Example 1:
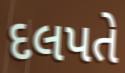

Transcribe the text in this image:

દલપતે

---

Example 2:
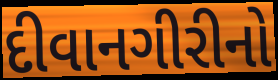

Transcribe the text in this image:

દીવાનગીરીનો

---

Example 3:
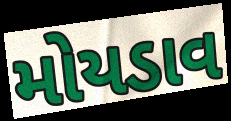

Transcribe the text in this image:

મોયડાવ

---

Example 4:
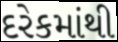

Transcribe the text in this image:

દરેકમાંથી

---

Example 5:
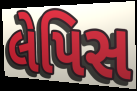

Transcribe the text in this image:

લેપિસ